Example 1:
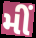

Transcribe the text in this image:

મીં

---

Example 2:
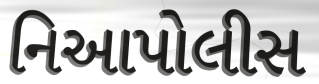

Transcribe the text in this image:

નિઆપોલીસ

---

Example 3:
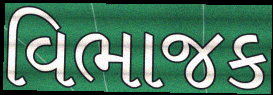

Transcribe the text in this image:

વિભાજક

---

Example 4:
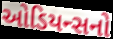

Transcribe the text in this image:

ઓડિયન્સનો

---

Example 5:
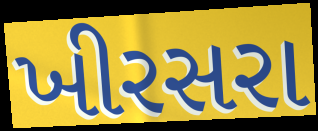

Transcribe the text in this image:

ખીરસરા